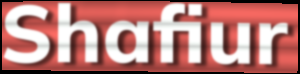
Shafiur